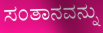
ಸಂತಾನವನ್ನು